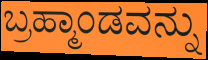
ಬ್ರಹ್ಮಾಂಡವನ್ನು